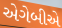
એગેબીએ